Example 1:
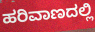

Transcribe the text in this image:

ಹರಿವಾಣದಲ್ಲಿ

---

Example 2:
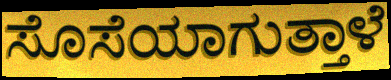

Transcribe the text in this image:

ಸೊಸೆಯಾಗುತ್ತಾಳೆ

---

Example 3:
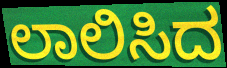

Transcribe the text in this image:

ಲಾಲಿಸಿದ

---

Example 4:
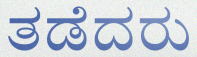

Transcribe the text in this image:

ತಡೆದರು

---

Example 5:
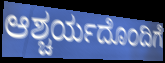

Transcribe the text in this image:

ಆಶ್ಚರ್ಯದೊಂದಿಗೆ